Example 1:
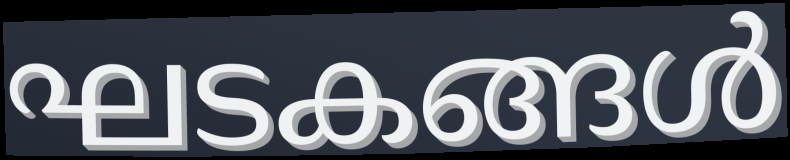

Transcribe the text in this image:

ഘടകങ്ങൾ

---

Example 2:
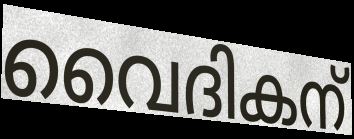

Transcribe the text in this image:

വൈദികന്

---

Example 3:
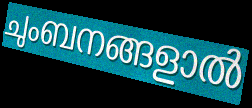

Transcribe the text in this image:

ചുംബനങ്ങളാൽ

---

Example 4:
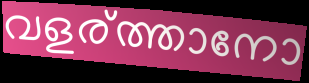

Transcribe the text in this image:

വളര്ത്താനോ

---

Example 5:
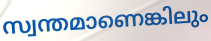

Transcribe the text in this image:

സ്വന്തമാണെങ്കിലും